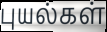
புயல்கள்